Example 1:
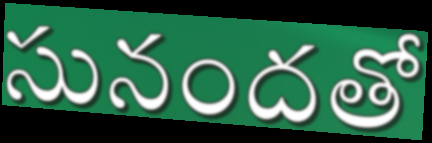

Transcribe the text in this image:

సునందతో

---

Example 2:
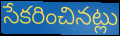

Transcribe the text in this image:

సేకరించినట్లు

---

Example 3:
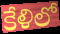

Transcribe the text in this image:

కేళిలో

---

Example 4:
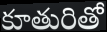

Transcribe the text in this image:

కూతురితో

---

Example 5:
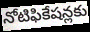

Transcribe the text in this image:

నోటిఫికేషన్లకు